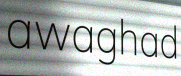
awaghad